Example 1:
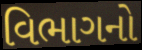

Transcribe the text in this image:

વિભાગનો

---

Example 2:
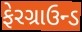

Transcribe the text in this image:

ફેરગ્રાઉન્ડ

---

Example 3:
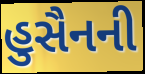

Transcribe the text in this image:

હુસૈનની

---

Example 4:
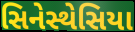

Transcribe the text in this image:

સિનેસ્થેસિયા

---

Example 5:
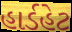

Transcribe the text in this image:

હાર્ડહેટ